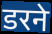
डरने